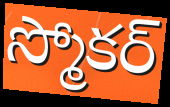
స్మోకర్